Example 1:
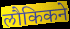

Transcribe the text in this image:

लौकिकने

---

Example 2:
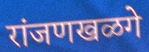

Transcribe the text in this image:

रांजणखळगे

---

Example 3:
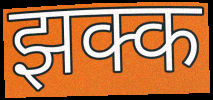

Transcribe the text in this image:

झक्क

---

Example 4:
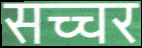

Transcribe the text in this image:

सच्चर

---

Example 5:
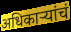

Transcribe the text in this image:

अधिकाऱ्यांचं